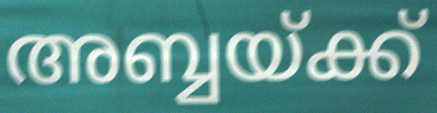
അബ്ബയ്ക്ക്